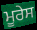
ਮੂਰੇਸ